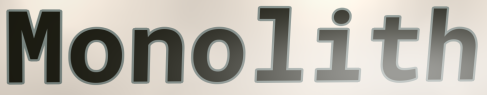
Monolith